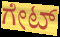
ಗೇಟ್